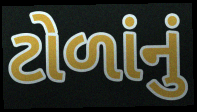
ટોળાંનું